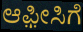
ಆಫ಼ೀಸಿಗೆ